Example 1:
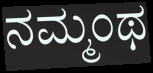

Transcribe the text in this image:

ನಮ್ಮಂಥ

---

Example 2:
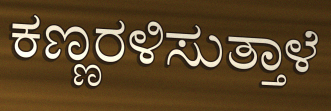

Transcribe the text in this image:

ಕಣ್ಣರಳಿಸುತ್ತಾಳೆ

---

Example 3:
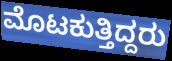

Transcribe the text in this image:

ಮೊಟಕುತ್ತಿದ್ದರು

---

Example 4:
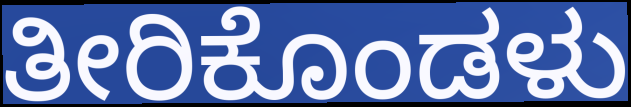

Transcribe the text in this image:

ತೀರಿಕೊಂಡಳು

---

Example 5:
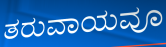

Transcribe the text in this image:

ತರುವಾಯವೂ